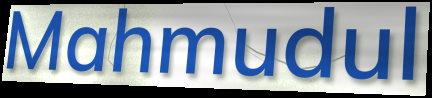
Mahmudul